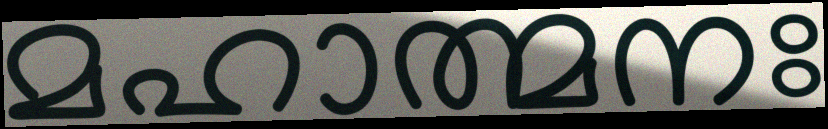
മഹാത്മനഃ